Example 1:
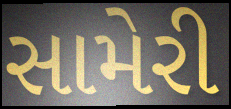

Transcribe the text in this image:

સામેરી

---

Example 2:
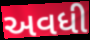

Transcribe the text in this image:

અવધી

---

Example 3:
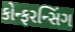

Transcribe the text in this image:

કોન્ફરન્સિંગ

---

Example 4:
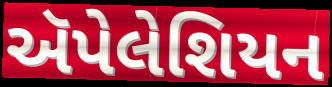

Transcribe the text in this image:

ઍપેલેશિયન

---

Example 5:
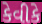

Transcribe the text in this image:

કેવીકે